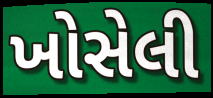
ખોસેલી